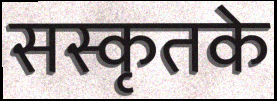
सस्कृतके